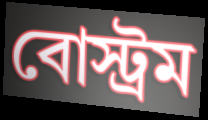
বোস্ট্রম